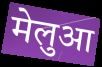
मेलुआ